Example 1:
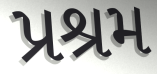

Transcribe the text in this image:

પ્રશ્રમ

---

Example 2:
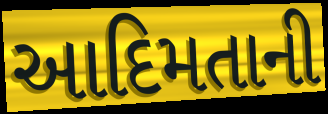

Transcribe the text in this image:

આદિમતાની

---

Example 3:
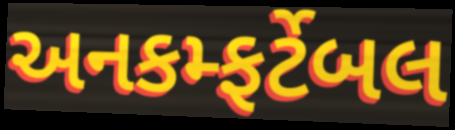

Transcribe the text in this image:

અનકમ્ફર્ટેબલ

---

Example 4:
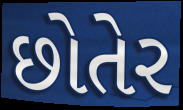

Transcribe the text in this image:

છોતેર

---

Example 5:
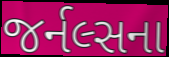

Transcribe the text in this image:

જર્નલ્સના